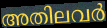
അതിലവർ